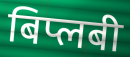
बिप्लबी